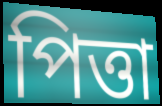
পিত্তা